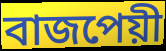
বাজপেয়ী